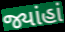
જ્યાંહાં